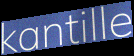
kantille